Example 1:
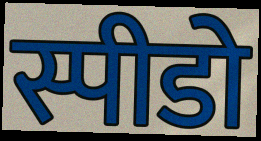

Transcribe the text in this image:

स्पीडो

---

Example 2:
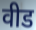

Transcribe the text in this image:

वीड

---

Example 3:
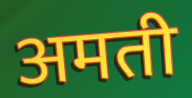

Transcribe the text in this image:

अमती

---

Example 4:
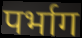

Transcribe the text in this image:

पर्भाग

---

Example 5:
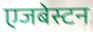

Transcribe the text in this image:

एजबेस्‍टन